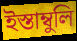
ইস্তাম্বুলি